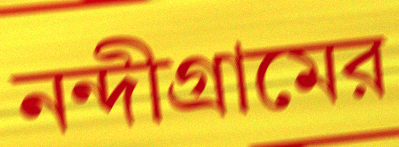
নন্দীগ্রামের